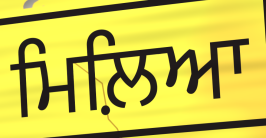
ਮਿਲ਼ਿਆ